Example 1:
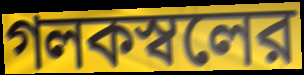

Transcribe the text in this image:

গলকস্বলের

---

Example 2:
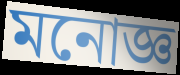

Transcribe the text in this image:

মনোজ্ঞ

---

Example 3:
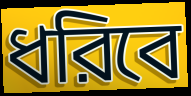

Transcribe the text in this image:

ধরিবে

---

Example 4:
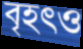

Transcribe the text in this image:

বৃহৎও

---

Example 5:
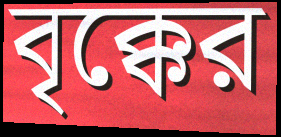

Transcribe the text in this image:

বৃক্কের